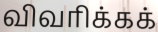
விவரிக்கக்